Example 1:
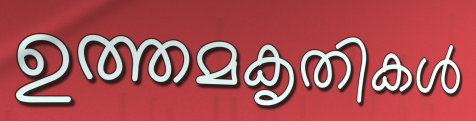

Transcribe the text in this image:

ഉത്തമകൃതികൾ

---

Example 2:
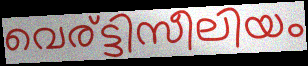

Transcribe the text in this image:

വെര്ട്ടിസീലിയം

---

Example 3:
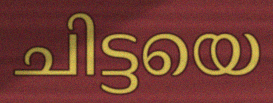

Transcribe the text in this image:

ചിട്ടയെ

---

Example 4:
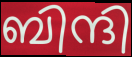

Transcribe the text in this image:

ബിന്ദി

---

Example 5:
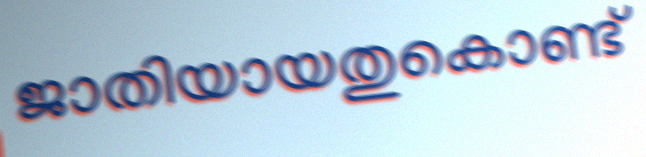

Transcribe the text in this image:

ജാതിയായതുകൊണ്ട്